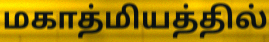
மகாத்மியத்தில்